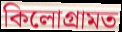
কিলোগ্ৰামত